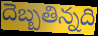
దెబ్బతిన్నది